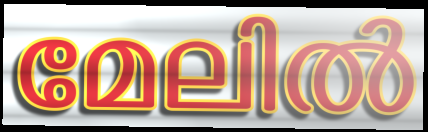
മേലിൽ